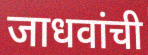
जाधवांची